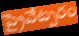
ప్రైవేట్పరం